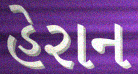
હેરાન